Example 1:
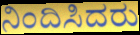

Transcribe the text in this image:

ನಿಂದಿಸಿದರು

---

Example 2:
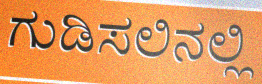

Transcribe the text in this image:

ಗುಡಿಸಲಿನಲ್ಲಿ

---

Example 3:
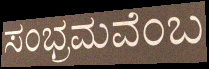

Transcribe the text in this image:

ಸಂಭ್ರಮವೆಂಬ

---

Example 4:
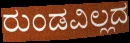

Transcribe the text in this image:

ರುಂಡವಿಲ್ಲದ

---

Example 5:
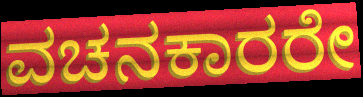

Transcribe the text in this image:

ವಚನಕಾರರೇ